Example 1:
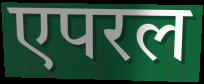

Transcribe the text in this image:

एपरल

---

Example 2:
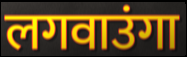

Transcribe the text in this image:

लगवाउंगा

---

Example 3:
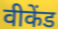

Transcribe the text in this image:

वीकेंड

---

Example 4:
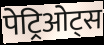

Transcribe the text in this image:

पेट्रिओट्स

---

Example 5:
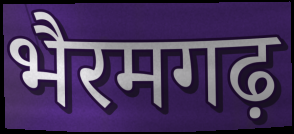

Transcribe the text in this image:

भैरमगढ़